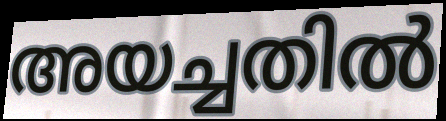
അയച്ചതിൽ